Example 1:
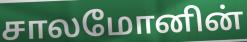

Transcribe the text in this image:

சாலமோனின்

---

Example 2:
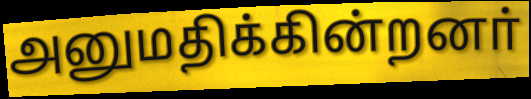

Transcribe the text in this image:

அனுமதிக்கின்றனர்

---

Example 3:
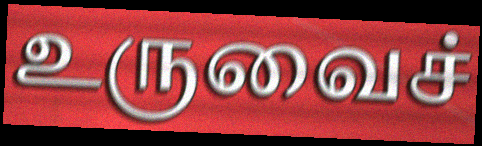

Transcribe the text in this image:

உருவைச்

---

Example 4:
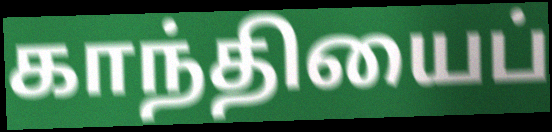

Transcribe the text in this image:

காந்தியைப்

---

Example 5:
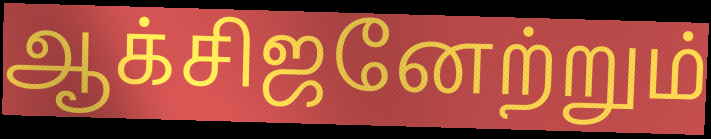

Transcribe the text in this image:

ஆக்சிஜனேற்றும்